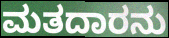
ಮತದಾರನು